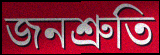
জনশ্ৰুতি